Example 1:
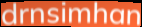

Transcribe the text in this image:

drnsimhan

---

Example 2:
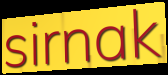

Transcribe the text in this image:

sirnak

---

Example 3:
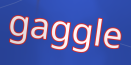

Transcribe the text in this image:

gaggle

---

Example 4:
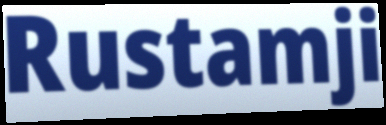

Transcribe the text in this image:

Rustamji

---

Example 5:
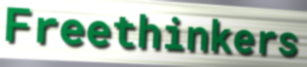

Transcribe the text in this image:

Freethinkers